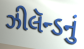
ઝીલૅન્ડનું